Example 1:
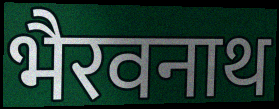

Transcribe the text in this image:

भैरवनाथ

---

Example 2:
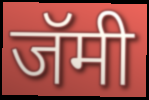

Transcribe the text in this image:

जॅमी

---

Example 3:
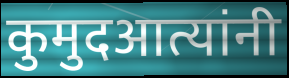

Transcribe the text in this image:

कुमुदआत्यांनी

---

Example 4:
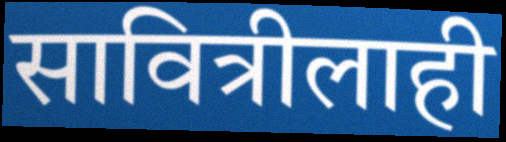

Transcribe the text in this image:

सावित्रीलाही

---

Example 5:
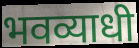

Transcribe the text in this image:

भवव्याधी